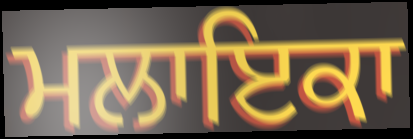
ਮਲਾਇਕਾ